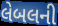
લેબલની